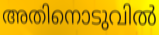
അതിനൊടുവിൽ